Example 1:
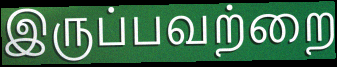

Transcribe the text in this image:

இருப்பவற்றை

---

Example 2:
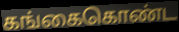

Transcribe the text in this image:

கங்கைகொண்ட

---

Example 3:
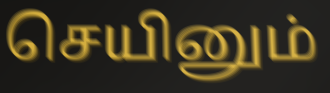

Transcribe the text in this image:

செயினும்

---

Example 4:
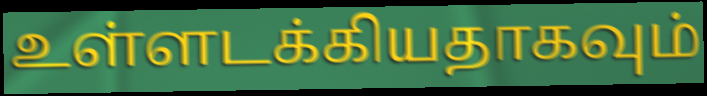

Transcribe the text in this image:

உள்ளடக்கியதாகவும்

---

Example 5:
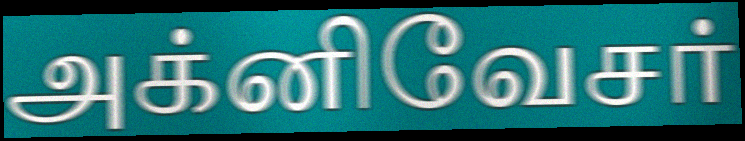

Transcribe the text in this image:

அக்னிவேசர்